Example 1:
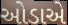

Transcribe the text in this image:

ઓડાએ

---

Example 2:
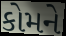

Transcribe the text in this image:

કોમને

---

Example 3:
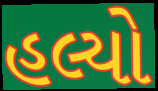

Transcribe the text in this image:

હલ્યો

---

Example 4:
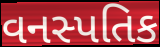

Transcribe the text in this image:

વનસ્પતિક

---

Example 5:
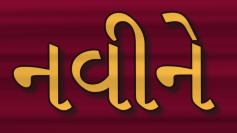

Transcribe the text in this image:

નવીને